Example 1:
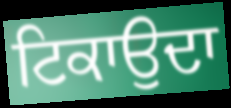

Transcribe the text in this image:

ਟਿਕਾਉਦਾ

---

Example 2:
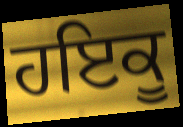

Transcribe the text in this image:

ਹਇਕੂ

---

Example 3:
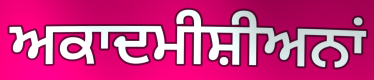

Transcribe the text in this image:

ਅਕਾਦਮੀਸ਼ੀਅਨਾਂ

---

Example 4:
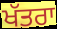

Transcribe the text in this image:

ਖੱਤਰਾ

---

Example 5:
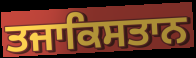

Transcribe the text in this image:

ਤਜਾਕਿਸਤਾਨ